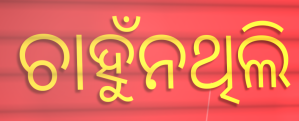
ଚାହୁଁନଥିଲି